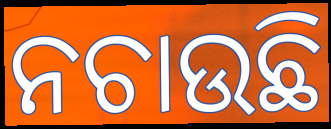
ନଚାଉଛି